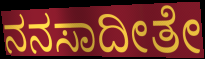
ನನಸಾದೀತೇ